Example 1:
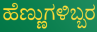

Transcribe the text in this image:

ಹೆಣ್ಣುಗಳಿಬ್ಬರ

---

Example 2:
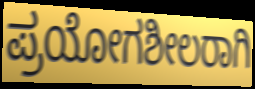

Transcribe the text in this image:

ಪ್ರಯೋಗಶೀಲರಾಗಿ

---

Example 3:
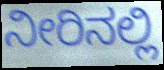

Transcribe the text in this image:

ನೀರಿನಲ್ಲಿ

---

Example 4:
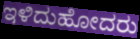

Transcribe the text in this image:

ಇಳಿದುಹೋದರು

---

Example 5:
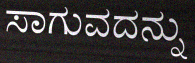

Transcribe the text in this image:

ಸಾಗುವದನ್ನು